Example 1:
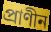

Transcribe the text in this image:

প্রাণীন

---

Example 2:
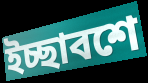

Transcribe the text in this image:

ইচ্ছাবশে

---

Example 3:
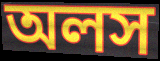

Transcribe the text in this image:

অলস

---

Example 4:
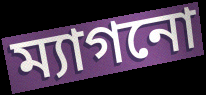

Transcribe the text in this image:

ম্যাগনো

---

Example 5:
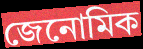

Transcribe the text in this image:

জেনোমিক